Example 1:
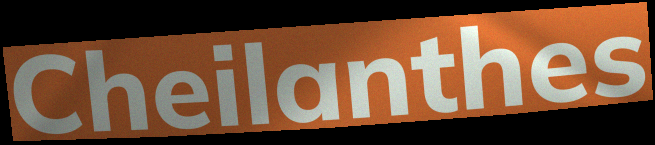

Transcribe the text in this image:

Cheilanthes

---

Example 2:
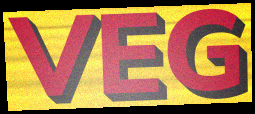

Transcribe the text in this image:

VEG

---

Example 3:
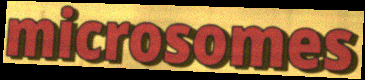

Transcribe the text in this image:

microsomes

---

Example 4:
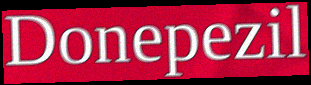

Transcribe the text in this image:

Donepezil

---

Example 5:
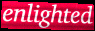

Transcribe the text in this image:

enlighted